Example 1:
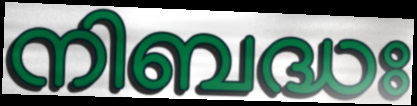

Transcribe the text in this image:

നിബദ്ധഃ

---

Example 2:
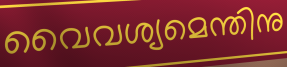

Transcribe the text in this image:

വൈവശ്യമെന്തിനു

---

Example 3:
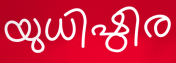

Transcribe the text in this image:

യുധിഷ്ഠിര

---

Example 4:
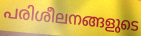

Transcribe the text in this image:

പരിശീലനങ്ങളുടെ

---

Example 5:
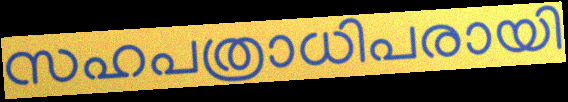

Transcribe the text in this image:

സഹപത്രാധിപരായി